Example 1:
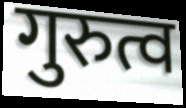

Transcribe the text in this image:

गुरुत्व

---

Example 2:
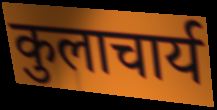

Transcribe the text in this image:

कुलाचार्य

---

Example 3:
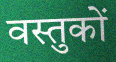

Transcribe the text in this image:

वस्तुकों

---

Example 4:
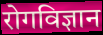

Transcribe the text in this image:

रोगविज्ञान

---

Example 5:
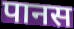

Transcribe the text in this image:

पानस